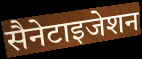
सैनेटाइजेशन